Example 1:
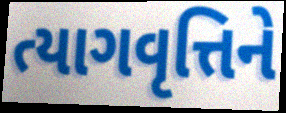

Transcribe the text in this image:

ત્યાગવૃત્તિને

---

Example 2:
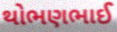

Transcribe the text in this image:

થોભણભાઈ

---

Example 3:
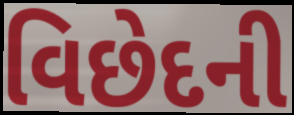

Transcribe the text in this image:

વિછેદની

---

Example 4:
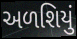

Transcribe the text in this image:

અળશિયું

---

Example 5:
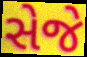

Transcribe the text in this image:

સેજે